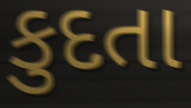
કુદતા